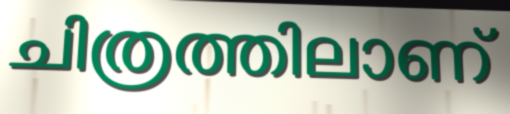
ചിത്രത്തിലാണ്